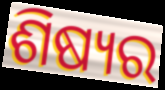
ଶିଷ୍ୟର